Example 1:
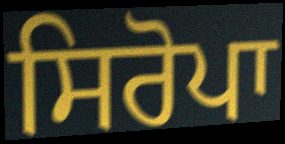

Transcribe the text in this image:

ਸਿਰੋਪਾ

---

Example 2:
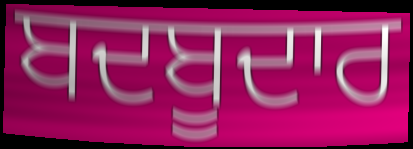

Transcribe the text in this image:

ਬਦਬੂਦਾਰ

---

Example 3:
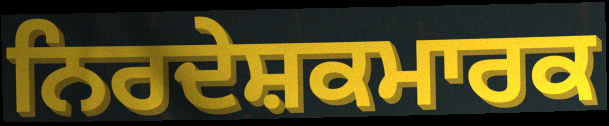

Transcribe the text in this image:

ਨਿਰਦੇਸ਼ਕਮਾਰਕ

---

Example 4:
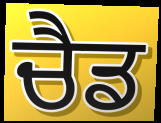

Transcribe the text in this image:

ਚੈਡ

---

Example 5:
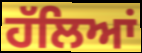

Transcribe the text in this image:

ਹੱਲਿਆਂ